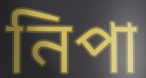
নিপা